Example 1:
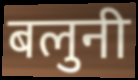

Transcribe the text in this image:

बलुनी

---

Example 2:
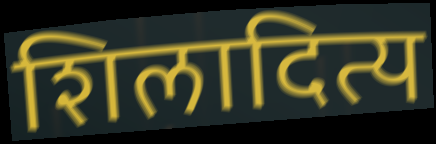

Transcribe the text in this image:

शिलादित्य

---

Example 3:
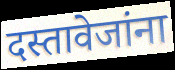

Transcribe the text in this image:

दस्तावेजांना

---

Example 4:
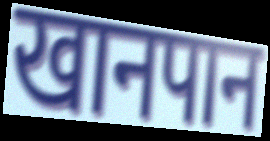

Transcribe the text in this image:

खानपान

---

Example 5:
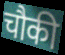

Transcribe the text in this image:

चौकी